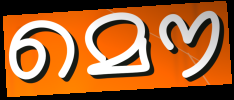
മൌ